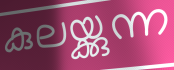
കുലയ്ക്കുന്ന